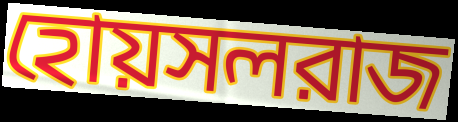
হোয়সলরাজ